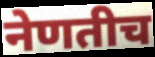
नेणतीच